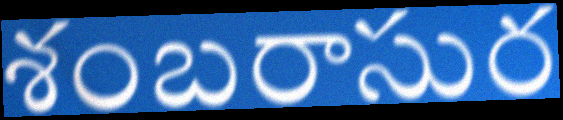
శంబరాసుర